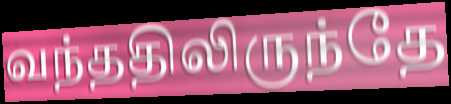
வந்ததிலிருந்தே